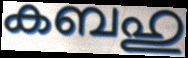
കബഹു